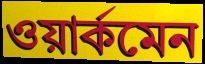
ওয়ার্কমেন